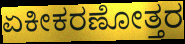
ಏಕೀಕರಣೋತ್ತರ